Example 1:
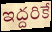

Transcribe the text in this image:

ఇద్దరికే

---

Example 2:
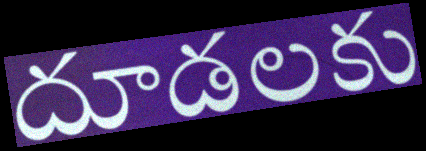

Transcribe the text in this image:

దూడలకు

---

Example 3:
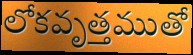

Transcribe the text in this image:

లోకవృత్తముతో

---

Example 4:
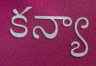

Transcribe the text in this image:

కన్యా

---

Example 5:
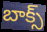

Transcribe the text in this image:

బాక్స్